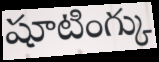
షూటింగ్కు